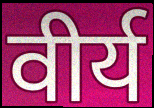
वीर्य